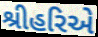
શ્રીહરિએ